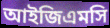
আইজিএমসি